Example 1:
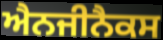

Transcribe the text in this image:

ਐਨਜੀਨੈਕਸ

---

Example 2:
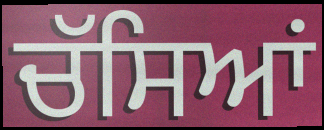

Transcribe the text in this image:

ਚੱਸਿਆਂ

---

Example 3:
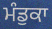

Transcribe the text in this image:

ਮੰਡੁਕਾ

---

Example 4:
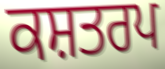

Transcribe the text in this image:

ਕਸ਼ਤਰਪ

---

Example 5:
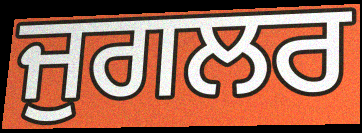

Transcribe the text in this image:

ਜੁਗਲਰ